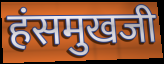
हंसमुखजी